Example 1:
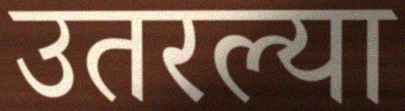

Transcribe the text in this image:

उतरल्या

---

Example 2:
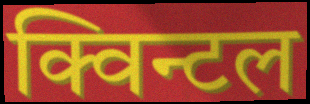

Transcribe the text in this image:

क्विन्टल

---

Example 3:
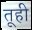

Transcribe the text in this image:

तूही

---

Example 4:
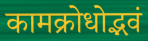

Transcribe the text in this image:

कामक्रोधोद्भवं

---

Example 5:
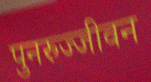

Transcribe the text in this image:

पुनरुज्जीवन